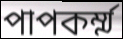
পাপকর্ম্ম